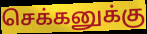
செக்கனுக்கு